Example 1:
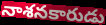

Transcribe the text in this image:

నాశనకారుడు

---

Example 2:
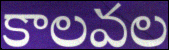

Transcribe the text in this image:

కాలవల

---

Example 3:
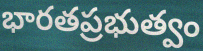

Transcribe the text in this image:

భారతప్రభుత్వం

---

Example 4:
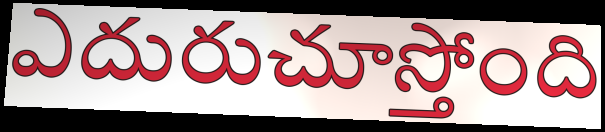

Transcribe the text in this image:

ఎదురుచూస్తోంది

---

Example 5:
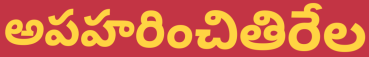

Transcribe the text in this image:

అపహరించితిరేల